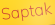
Saptak